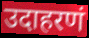
उदाहरणं